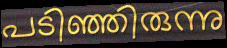
പടിഞ്ഞിരുന്നു